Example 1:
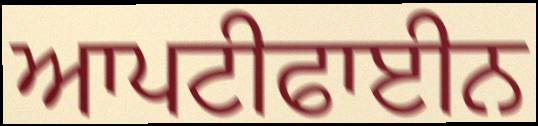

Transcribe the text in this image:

ਆਪਟੀਫਾਈਨ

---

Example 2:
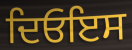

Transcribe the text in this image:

ਦਿਓਇਸ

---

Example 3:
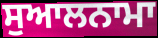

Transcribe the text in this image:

ਸੁਆਲਨਾਮਾ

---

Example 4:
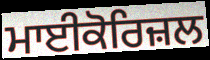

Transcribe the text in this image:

ਮਾਈਕੋਰਿਜ਼ਲ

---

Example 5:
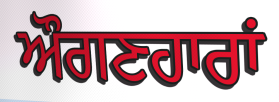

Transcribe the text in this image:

ਔਗਣਹਾਰਾਂ